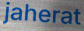
jaherat